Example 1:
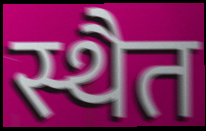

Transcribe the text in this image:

स्थैत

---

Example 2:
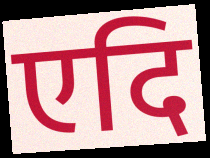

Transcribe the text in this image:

एदि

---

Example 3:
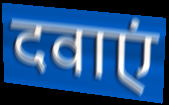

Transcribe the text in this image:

दवाएं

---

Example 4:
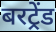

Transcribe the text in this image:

बरट्रेंड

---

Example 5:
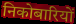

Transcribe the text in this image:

निकोबारियों